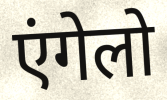
एंगेलो